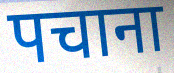
पचाना